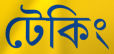
টেকিং